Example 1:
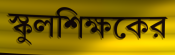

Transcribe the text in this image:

স্কুলশিক্ষকের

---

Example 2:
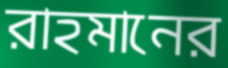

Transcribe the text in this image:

রাহমানের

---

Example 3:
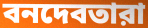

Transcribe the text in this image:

বনদেবতারা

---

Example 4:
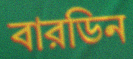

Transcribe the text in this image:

বারডিন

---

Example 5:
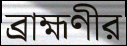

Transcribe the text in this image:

ব্রাহ্মণীর